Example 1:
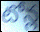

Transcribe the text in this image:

టోన్ల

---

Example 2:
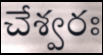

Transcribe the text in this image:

చేశ్వరః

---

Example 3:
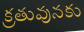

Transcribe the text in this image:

క్రతువునకు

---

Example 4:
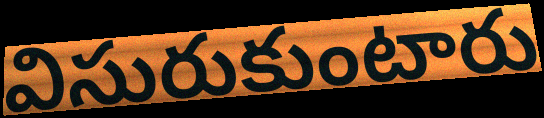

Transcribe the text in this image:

విసురుకుంటారు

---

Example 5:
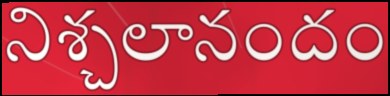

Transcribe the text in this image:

నిశ్చలానందం